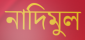
নাদিমুল